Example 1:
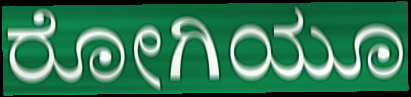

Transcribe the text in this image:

ರೋಗಿಯೂ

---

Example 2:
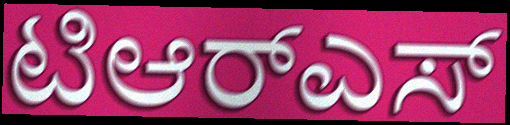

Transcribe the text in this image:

ಟಿಆರ್‌ಎಸ್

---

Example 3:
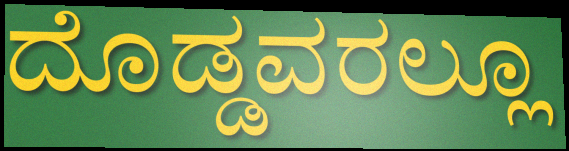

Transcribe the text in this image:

ದೊಡ್ಡವರಲ್ಲೂ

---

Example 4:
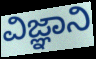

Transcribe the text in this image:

ವಿಜ್ಞಾನಿ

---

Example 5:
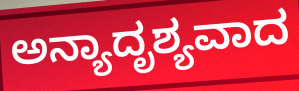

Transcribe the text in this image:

ಅನ್ಯಾದೃಶ್ಯವಾದ